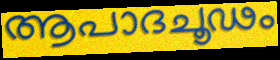
ആപാദചൂഢം